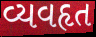
વ્યવહૃત